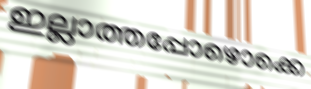
ഇല്ലാത്തപ്പോഴൊക്കെ